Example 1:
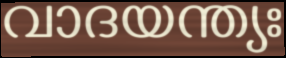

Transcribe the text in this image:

വാദയന്ത്യഃ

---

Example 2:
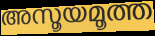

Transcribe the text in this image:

അസൂയമൂത്ത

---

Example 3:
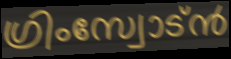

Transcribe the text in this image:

ഗ്രിംസ്വോട്ൻ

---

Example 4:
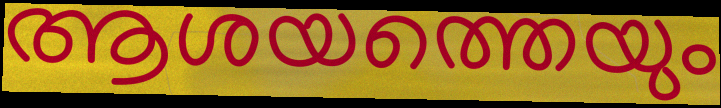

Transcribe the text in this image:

ആശയത്തെയും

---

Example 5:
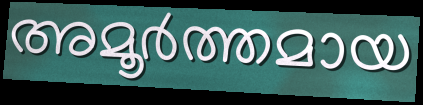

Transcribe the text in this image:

അമൂർത്തമായ